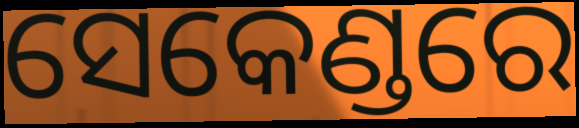
ସେକେଣ୍ଡରେ